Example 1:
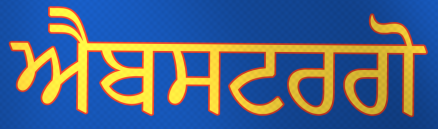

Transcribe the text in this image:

ਐਬਸਟਰਗੋ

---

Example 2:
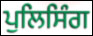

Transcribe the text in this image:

ਪੁਲਿਸਿੰਗ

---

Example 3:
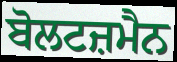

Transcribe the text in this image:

ਬੋਲਟਜ਼ਮੈਨ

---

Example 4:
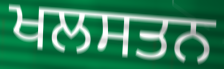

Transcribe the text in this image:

ਖਲਸਤਨ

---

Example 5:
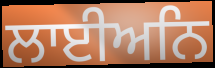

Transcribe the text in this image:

ਲਾਈਅਨਿ